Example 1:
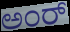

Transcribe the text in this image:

ಅಂರ್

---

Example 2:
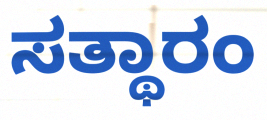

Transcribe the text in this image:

ಸತ್ಥಾರಂ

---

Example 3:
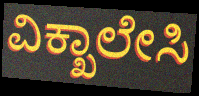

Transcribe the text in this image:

ವಿಕ್ಖಾಲೇಸಿ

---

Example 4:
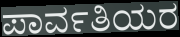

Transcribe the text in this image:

ಪಾರ್ವತಿಯರ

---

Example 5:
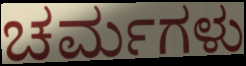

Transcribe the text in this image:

ಚರ್ಮಗಳು